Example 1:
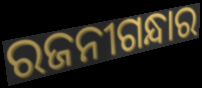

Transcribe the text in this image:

ରଜନୀଗନ୍ଧାର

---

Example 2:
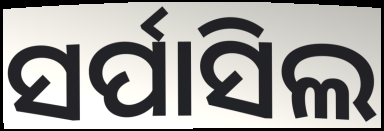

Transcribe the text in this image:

ସର୍ପାସିଲ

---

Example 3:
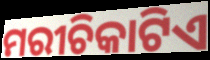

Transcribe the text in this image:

ମରୀଚିକାଟିଏ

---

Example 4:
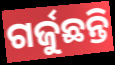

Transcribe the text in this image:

ଗର୍ଜୁଛନ୍ତି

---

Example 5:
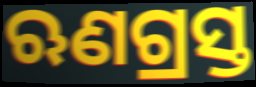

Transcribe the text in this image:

ଋଣଗ୍ରସ୍ତ